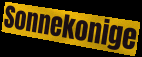
Sonnekonige